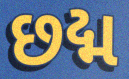
છદ્મ